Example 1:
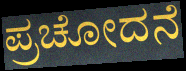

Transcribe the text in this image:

ಪ್ರಚೋದನೆ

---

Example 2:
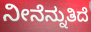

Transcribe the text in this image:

ನೀನೆನ್ನುತಿದೆ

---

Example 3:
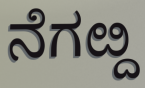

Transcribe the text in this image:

ನೆಗೞ್ದ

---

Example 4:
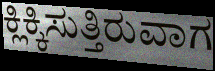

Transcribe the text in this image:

ಕ್ಲಿಕ್ಕಿಸುತ್ತಿರುವಾಗ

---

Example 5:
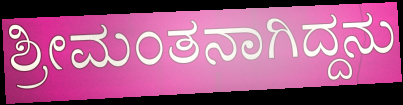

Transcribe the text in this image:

ಶ್ರೀಮಂತನಾಗಿದ್ದನು